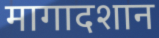
मागादशान